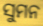
ସୁମନ